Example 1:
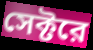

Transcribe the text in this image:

সেক্টরে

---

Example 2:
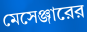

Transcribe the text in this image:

মেসেঞ্জারের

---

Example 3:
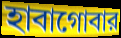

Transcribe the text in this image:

হাবাগোবার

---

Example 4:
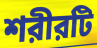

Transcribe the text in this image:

শরীরটি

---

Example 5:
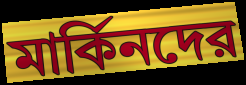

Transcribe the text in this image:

মার্কিনদের